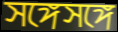
সঙ্গেসঙ্গে